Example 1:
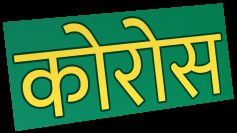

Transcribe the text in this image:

कोरोस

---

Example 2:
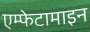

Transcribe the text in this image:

एम्फेटामाइन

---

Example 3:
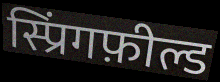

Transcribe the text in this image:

स्प्रिंगफ़ील्ड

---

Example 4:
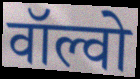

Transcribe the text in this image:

वॉल्वो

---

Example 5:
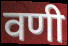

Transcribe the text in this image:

वणी